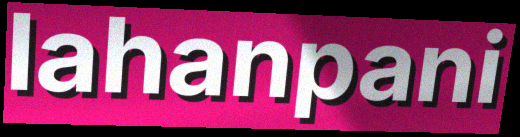
lahanpani